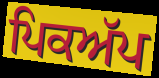
ਪਿਕਅੱਪ